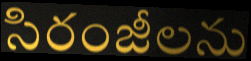
సిరంజీలను